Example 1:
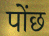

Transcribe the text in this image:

पोंछ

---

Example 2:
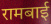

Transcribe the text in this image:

रामबाई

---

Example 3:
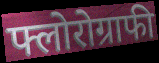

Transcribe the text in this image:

फ्लोरोग्राफी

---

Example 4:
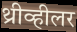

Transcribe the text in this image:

थ्रीव्हीलर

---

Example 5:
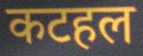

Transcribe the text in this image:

कटहल